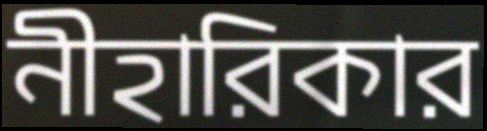
নীহারিকার